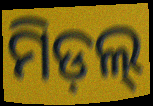
ମିଡ଼ଲ୍